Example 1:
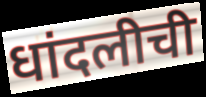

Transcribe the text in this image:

धांदलीची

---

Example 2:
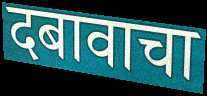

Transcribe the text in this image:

दबावाचा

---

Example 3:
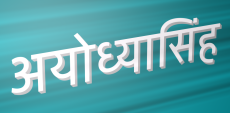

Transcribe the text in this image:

अयोध्यासिंह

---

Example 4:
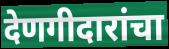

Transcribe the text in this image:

देणगीदारांचा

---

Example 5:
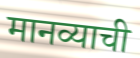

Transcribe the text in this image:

मानव्याची